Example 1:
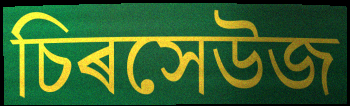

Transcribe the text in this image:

চিৰসেউজ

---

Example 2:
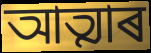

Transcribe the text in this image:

আত্মাৰ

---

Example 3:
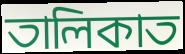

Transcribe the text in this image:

তালিকাত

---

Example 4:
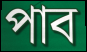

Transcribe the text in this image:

পাব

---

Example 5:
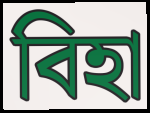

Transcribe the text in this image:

বিহা